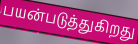
பயன்படுத்துகிறது